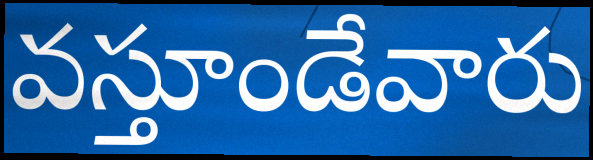
వస్తూండేవారు